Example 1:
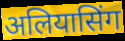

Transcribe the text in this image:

अलियासिंग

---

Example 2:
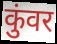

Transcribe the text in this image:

कुंवर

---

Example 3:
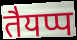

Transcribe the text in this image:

तैयप्प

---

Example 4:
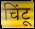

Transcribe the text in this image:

चिंटू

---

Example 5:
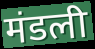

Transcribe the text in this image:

मंडली